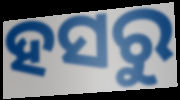
ହସରୁ